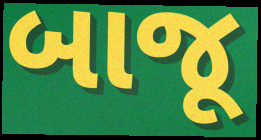
બાજૂ